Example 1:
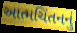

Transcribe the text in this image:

આત્મચિંતનનું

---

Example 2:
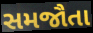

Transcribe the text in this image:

સમજૌતા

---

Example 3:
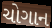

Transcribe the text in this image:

ચોગાન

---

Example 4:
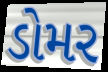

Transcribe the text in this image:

ડોમર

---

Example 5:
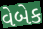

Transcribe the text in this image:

વેબેક